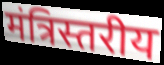
मंत्रिस्तरीय